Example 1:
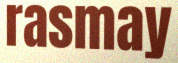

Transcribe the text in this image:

rasmay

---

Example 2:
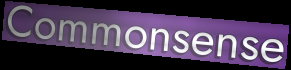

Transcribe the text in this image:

Commonsense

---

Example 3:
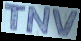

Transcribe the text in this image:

TNV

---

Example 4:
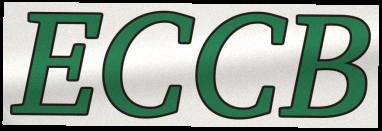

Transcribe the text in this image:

ECCB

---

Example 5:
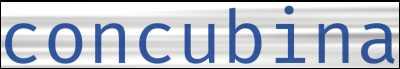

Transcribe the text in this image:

concubina